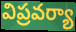
విప్రవర్యా